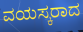
ವಯಸ್ಕರಾದ